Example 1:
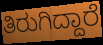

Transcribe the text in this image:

ತಿರುಗಿದ್ದಾರೆ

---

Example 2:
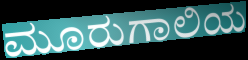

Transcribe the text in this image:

ಮೂರುಗಾಲಿಯ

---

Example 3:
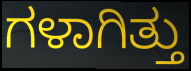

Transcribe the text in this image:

ಗಳಾಗಿತ್ತು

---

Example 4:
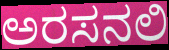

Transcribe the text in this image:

ಅರಸನಲಿ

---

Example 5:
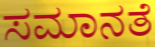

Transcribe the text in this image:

ಸಮಾನತೆ